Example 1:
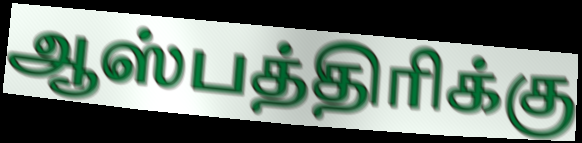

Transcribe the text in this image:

ஆஸ்பத்திரிக்கு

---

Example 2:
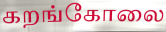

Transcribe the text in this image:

கறங்கோலை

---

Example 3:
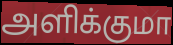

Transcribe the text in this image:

அளிக்குமா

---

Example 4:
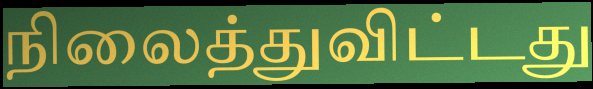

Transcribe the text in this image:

நிலைத்துவிட்டது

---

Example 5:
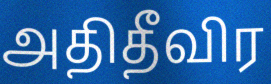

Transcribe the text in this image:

அதிதீவிர